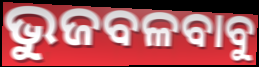
ଭୁଜବଳବାବୁ